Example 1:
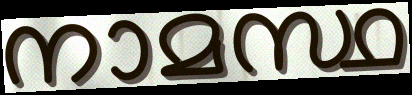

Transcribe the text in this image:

നാമസ്ഥ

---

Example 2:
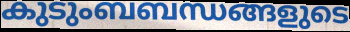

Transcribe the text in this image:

കുടുംബബന്ധങ്ങളുടെ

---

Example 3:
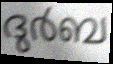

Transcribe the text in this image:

ദുർബ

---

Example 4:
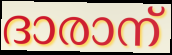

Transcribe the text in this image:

ദാരാന്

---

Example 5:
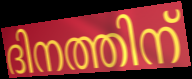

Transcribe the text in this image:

ദിനത്തിന്